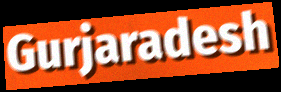
Gurjaradesh